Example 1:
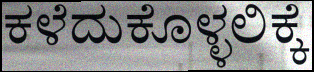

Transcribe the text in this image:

ಕಳೆದುಕೊಳ್ಳಲಿಕ್ಕೆ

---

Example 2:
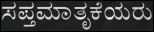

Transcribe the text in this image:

ಸಪ್ತಮಾತೃಕೆಯರು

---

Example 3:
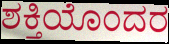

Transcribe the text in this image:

ಶಕ್ತಿಯೊಂದರ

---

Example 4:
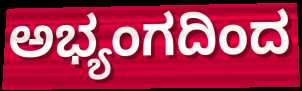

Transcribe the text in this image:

ಅಭ್ಯಂಗದಿಂದ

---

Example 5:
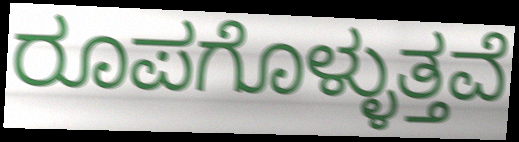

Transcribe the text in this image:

ರೂಪಗೊಳ್ಳುತ್ತವೆ